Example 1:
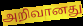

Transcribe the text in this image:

அறிவானது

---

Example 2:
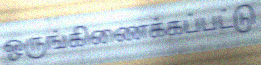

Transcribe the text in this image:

ஒருங்கிணைக்கப்பட்டு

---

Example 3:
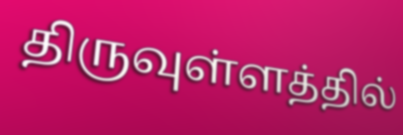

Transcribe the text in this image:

திருவுள்ளத்தில்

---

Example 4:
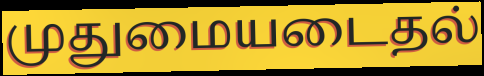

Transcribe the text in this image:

முதுமையடைதல்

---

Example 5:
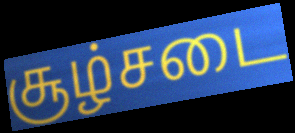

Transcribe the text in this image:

சூழ்சடை